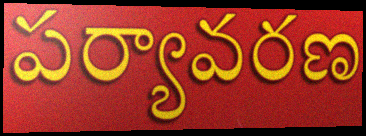
పర్యావరణ